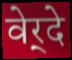
वेर्दे